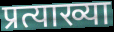
प्रत्याख्या